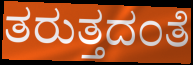
ತರುತ್ತದಂತೆ